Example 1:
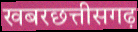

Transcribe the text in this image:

खबरछत्तीसगढ़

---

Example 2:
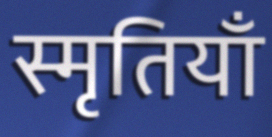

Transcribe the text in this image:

स्मृतियाँ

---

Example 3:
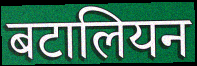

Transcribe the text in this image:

बटालियन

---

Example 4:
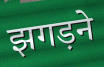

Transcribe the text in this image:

झगड़ने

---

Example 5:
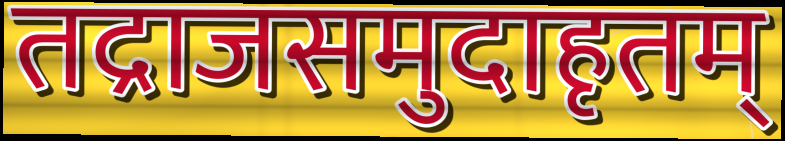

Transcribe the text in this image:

तद्राजसमुदाहृतम्